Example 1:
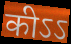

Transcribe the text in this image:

कीऽऽ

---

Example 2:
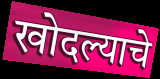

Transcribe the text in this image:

खोदल्याचे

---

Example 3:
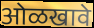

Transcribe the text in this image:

ओळखावे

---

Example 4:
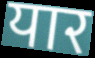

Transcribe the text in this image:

यार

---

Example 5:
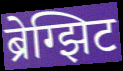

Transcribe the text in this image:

ब्रेग्झिट